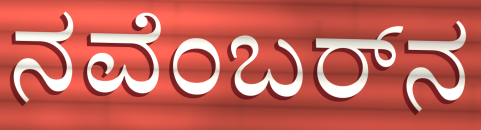
ನವೆಂಬರ್‌ನ